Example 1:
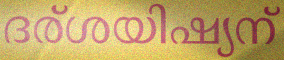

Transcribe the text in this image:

ദര്ശയിഷ്യന്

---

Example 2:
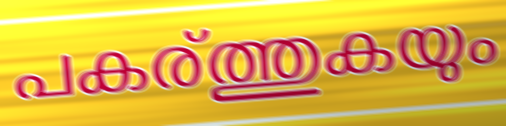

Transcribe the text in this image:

പകര്ത്തുകയും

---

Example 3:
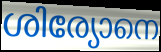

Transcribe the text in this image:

ശിര്യോനെ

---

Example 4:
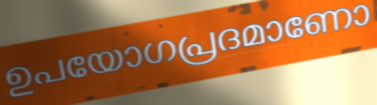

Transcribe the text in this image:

ഉപയോഗപ്രദമാണോ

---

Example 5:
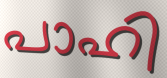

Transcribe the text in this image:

പാഹി